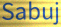
Sabuj